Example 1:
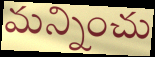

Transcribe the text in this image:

మన్నించు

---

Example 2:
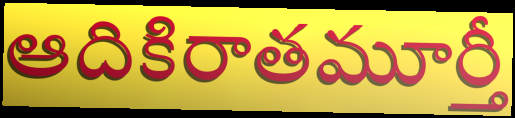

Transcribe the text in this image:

ఆదికిరాతమూర్తీ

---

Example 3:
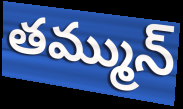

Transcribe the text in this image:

తమ్మున్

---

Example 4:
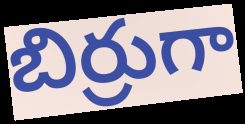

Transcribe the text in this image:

బిర్రుగా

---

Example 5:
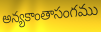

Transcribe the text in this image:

అన్యకాంతాసంగము